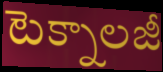
టెక్నాలజీ